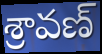
శ్రావణ్